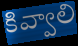
కివ్వాలి